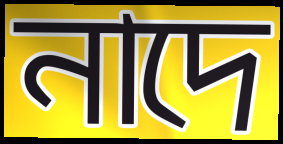
নাদে